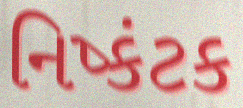
નિષ્કંટક